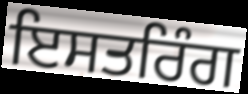
ਇਸਤਰਿੰਗ